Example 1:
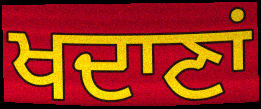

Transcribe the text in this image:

ਖਦਾਣਾਂ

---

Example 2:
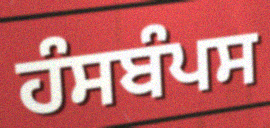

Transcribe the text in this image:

ਹੰਸਬੰਪਸ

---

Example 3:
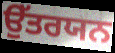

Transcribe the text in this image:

ਉੱਤਰਯਨ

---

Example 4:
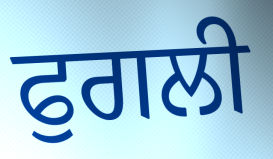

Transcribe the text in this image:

ਫੁਗਲੀ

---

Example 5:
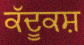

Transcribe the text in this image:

ਕੱਦੂਕਸ਼